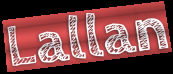
Lallan